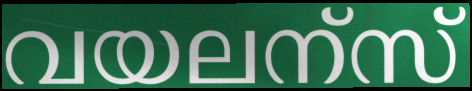
വയലന്സ്